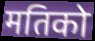
मतिको